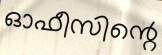
ഓഫീസിന്റെ